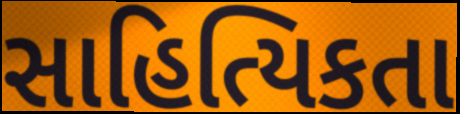
સાહિત્યિકતા